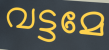
വട്ടമേ